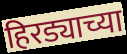
हिरड्याच्या